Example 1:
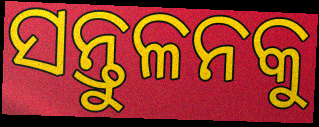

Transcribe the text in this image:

ସନ୍ତୁଳନକୁ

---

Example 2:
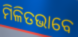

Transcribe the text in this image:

ମିଳିତଭାବେ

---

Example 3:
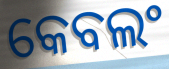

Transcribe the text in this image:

କେବଲଂ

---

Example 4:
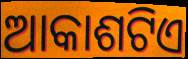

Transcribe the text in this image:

ଆକାଶଟିଏ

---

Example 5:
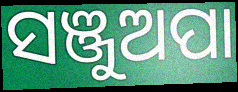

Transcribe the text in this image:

ସଞ୍ଜୁଅପା